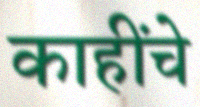
काहींचे